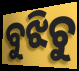
ବୁଝିଚୁ